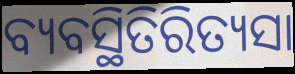
ବ୍ୟବସ୍ଥିତିରିତ୍ୟସା